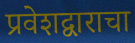
प्रवेशद्वाराचा